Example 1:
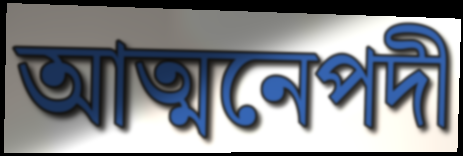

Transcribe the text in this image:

আত্মনেপদী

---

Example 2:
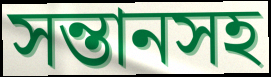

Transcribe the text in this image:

সন্তানসহ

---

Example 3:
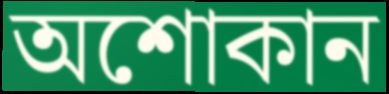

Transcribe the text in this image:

অশোকান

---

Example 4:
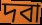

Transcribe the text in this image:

দবা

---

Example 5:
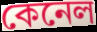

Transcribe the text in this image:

কেনেল